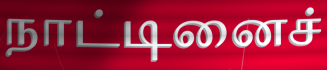
நாட்டினைச்